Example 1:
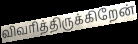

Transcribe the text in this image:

விவரித்திருக்கிறேன்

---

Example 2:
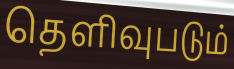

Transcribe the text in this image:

தெளிவுபடும்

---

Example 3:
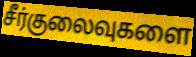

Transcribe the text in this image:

சீர்குலைவுகளை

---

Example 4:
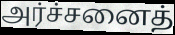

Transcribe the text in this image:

அர்ச்சனைத்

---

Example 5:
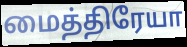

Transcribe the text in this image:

மைத்திரேயா